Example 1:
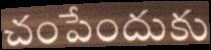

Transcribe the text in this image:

చంపేందుకు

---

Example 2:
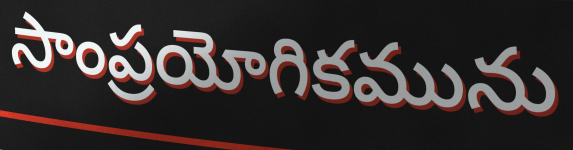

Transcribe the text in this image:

సాంప్రయోగికమును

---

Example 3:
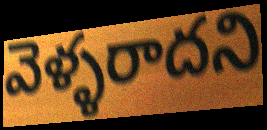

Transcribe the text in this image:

వెళ్ళరాదని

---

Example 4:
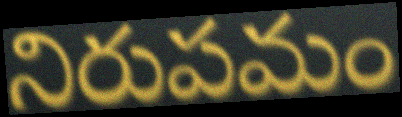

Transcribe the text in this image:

నిరుపమం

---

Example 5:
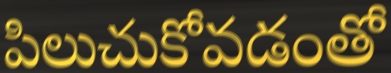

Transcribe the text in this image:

పిలుచుకోవడంతో